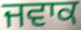
ਜਵਾਕ